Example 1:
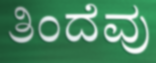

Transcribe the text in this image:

ತಿಂದೆವು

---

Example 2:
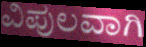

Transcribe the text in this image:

ವಿಪುಲವಾಗಿ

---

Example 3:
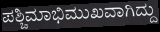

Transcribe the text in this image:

ಪಶ್ಚಿಮಾಭಿಮುಖವಾಗಿದ್ದು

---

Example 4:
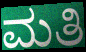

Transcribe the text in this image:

ಮತಿ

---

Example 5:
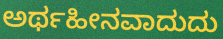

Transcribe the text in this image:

ಅರ್ಥಹೀನವಾದುದು